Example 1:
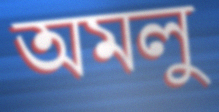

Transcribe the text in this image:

অমলু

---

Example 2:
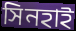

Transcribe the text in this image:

সিনহাই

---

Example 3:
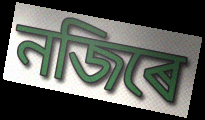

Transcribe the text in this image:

নজিৰে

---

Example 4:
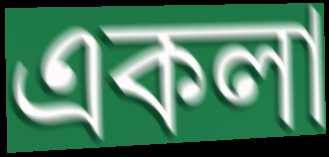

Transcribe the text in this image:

একলা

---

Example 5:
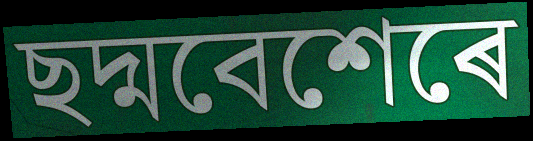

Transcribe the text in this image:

ছদ্মবেশেৰে